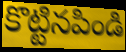
కొట్టినపిండి